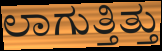
ಲಾಗುತ್ತಿತ್ತು